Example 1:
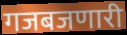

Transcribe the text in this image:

गजबजणारी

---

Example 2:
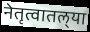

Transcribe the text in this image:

नेतृत्वातल्या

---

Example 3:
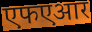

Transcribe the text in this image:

एफएआर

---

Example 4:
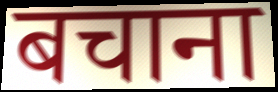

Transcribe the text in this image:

बचाना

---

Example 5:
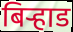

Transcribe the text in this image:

बिर्‍हाड